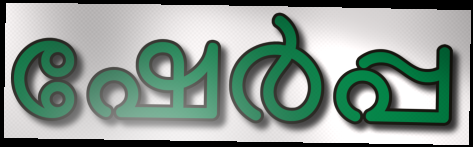
ഷേർപ്പ